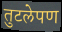
तुटलेपण